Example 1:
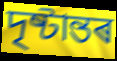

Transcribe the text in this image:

দৃষ্টান্তৰ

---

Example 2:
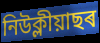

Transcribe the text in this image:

নিউক্লীয়াছৰ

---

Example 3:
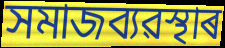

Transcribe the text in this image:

সমাজব্যৱস্থাৰ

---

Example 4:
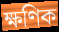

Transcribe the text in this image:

ক্ষণিক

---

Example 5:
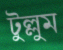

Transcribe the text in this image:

টুল্লুম